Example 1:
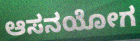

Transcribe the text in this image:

ಆಸನಯೋಗ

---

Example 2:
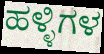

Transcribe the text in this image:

ಹಳ್ಳಿಗಳ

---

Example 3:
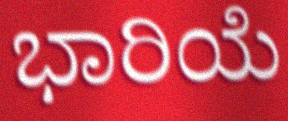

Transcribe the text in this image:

ಭಾರಿಯೆ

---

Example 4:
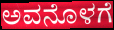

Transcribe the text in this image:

ಅವನೊಳಗೆ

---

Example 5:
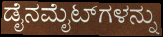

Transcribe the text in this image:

ಡೈನಮೈಟ್‌ಗಳನ್ನು